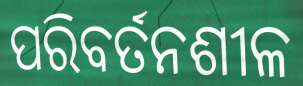
ପରିବର୍ତନଶୀଳ